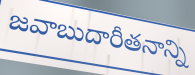
జవాబుదారీతనాన్ని